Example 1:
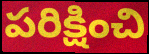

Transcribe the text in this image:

పరిక్షించి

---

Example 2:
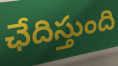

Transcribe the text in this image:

ఛేదిస్తుంది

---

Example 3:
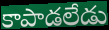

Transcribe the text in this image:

కాపాడలేడు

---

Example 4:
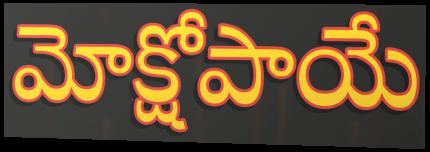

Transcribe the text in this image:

మోక్షోపాయే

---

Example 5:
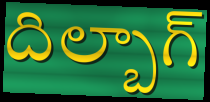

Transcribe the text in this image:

దిల్బాగ్